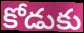
కోడుకు